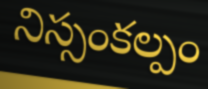
నిస్సంకల్పం